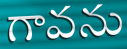
గావను